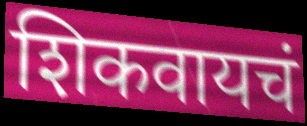
शिकवायचं